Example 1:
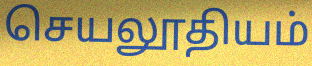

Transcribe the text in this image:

செயலூதியம்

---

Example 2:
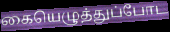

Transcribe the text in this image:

கையெழுத்துப்போட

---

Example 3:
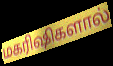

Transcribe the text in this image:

மகரிஷிகளால்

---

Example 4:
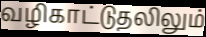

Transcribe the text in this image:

வழிகாட்டுதலிலும்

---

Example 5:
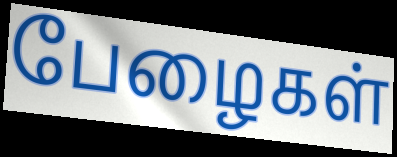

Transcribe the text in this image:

பேழைகள்